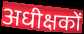
अधीक्षकों